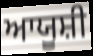
ਆਯੂਸ਼ੀ